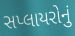
સપ્લાયરોનું